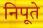
निपूते